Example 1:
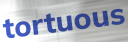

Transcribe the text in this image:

tortuous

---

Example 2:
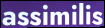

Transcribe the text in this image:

assimilis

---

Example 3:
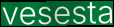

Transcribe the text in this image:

vesesta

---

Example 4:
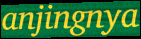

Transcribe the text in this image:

anjingnya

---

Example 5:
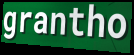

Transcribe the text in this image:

grantho